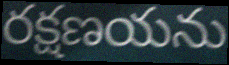
రక్షణయను